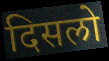
दिसलो